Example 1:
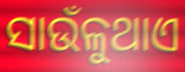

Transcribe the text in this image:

ସାଉଁଳୁଥାଏ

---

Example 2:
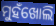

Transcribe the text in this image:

ମୁହଁଖୋଲି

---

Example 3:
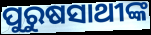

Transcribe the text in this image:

ପୁରୁଷସାଥୀଙ୍କ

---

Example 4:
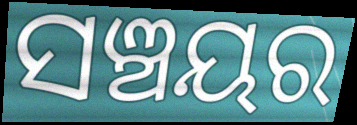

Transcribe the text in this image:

ସଞ୍ଚୟର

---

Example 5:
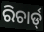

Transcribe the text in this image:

ରିଚାର୍ଡ୍